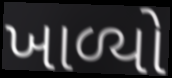
ખાળ્યો